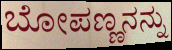
ಬೋಪಣ್ಣನನ್ನು